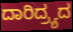
ದಾರಿದ್ರ್ಯದ